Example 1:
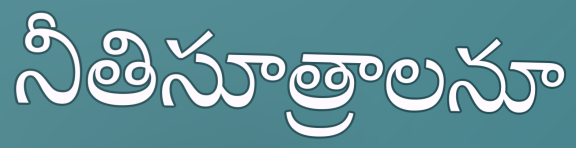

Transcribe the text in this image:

నీతిసూత్రాలనూ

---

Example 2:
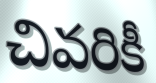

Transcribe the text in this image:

చివరికీ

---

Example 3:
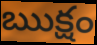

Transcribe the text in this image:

ఋక్షం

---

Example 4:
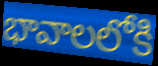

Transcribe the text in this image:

భావాలలోకి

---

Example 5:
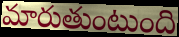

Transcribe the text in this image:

మారుతుంటుంది